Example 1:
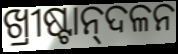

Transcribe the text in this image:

ଖ୍ରୀଷ୍ଟାନ୍‌ଦଳନ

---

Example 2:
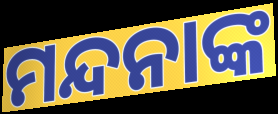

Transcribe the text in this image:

ମନ୍ଦନାଙ୍କ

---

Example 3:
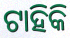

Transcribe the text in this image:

ଟାହିକି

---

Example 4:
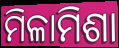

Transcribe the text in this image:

ମିଳାମିଶା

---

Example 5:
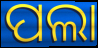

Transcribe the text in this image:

ପଲା